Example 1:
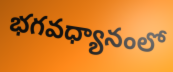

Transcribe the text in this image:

భగవధ్యానంలో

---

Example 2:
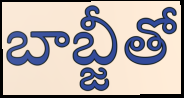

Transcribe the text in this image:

బాబ్జీతో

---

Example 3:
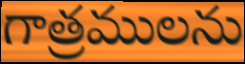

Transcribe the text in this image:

గాత్రములను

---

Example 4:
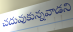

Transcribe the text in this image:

చదువుకున్నవాడని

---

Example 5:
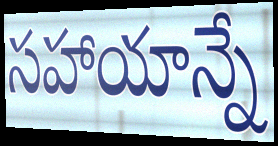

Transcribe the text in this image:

సహాయాన్నే